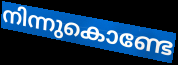
നിന്നുകൊണ്ടേ